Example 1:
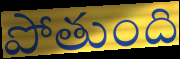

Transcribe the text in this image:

పోతుంది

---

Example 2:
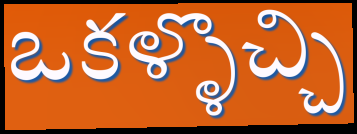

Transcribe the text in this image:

ఒకళ్ళొచ్చి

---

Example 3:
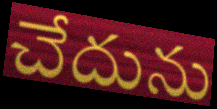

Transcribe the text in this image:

చేదును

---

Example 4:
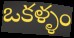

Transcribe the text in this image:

ఒకళ్ళం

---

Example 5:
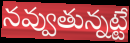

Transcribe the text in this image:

నవ్వుతున్నట్టే